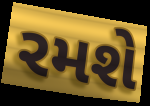
રમશે